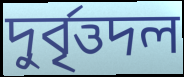
দুর্বৃত্তদল